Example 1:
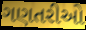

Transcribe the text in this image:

ગણતરીઓ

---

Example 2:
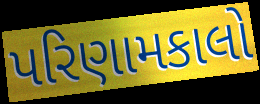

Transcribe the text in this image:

પરિણામકાલો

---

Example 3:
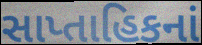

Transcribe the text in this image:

સાપ્તાહિકનાં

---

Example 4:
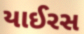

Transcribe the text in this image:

યાઈરસ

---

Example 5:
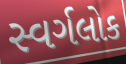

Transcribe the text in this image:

સ્વર્ગલોક